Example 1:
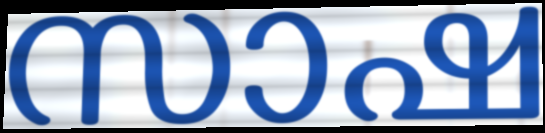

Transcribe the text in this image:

സാഷ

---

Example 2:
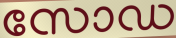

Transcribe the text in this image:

സോഡ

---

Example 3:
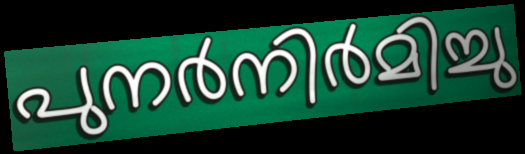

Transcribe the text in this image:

പുനർനിർമിച്ചു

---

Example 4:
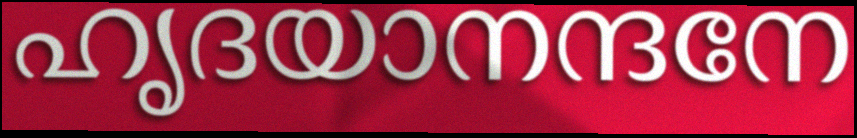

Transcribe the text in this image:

ഹൃദയാനന്ദനേ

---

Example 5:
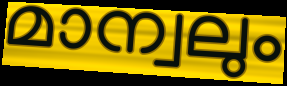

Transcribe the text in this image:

മാന്വലും